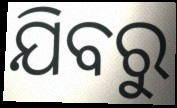
ଯିବରୁ